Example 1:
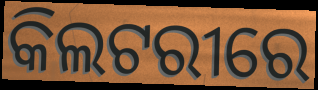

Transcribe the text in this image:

କିଲଟରୀରେ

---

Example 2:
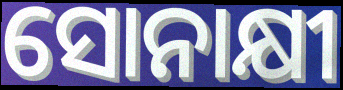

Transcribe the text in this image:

ସୋନାକ୍ଷୀ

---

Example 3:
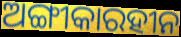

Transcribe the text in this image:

ଅଙ୍ଗୀକାରହୀନ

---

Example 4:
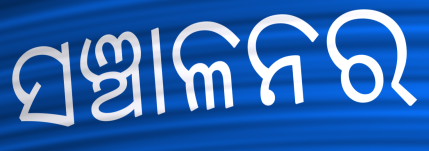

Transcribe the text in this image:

ସଞ୍ଚାଳନର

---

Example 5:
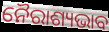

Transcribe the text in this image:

ନୈରାଶ୍ୟଭାବ